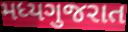
મધ્યગુજરાત